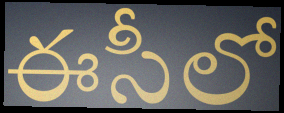
ఈసీలో